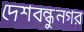
দেশবন্ধুনগর